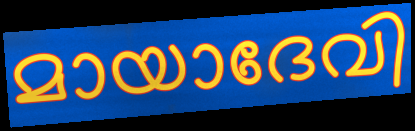
മായാദേവി